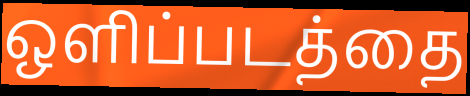
ஒளிப்படத்தை